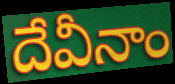
దేవీనాం